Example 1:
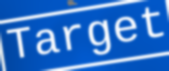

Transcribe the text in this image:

Target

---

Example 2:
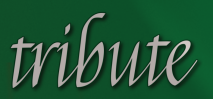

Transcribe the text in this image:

tribute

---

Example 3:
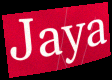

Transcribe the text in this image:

Jaya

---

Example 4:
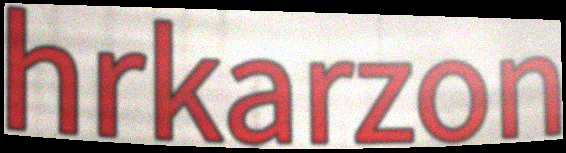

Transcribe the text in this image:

hrkarzon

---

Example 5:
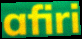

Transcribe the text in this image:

afiri